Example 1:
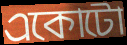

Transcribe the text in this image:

একোটো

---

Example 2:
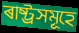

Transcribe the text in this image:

ৰাষ্ট্ৰসমূহে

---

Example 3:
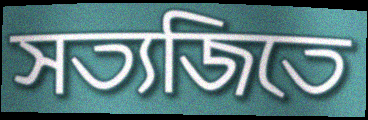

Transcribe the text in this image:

সত্যজিতে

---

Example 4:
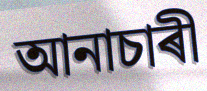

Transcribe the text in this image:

আনাচাৰী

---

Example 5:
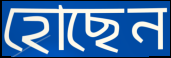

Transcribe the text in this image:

হোছেন